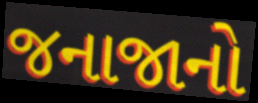
જનાજાનો